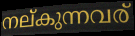
നല്കുന്നവര്